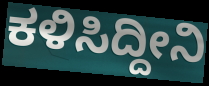
ಕಳಿಸಿದ್ದೀನಿ